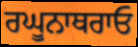
ਰਘੂਨਾਥਰਾਓ